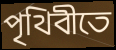
পৃথিবীতে